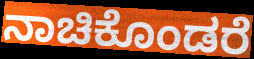
ನಾಚಿಕೊಂಡರೆ